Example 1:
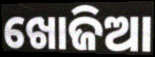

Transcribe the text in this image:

ଖୋଜିଆ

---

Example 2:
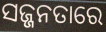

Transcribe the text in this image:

ସଜ୍ଜନତାରେ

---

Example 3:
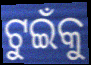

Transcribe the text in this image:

ଟୁଇଁକୁ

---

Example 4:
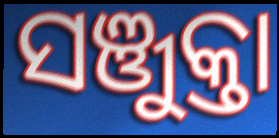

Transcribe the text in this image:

ସଞ୍ଜୁକ୍ତା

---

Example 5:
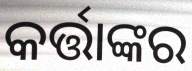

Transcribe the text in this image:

କର୍ତ୍ତାଙ୍କର